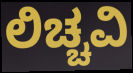
ಲಿಚ್ಚವಿ